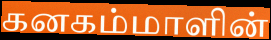
கனகம்மாளின்